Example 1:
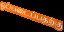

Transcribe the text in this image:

ஒப்படைப்பதற்கு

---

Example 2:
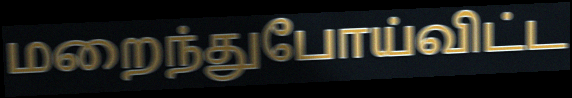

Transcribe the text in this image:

மறைந்துபோய்விட்ட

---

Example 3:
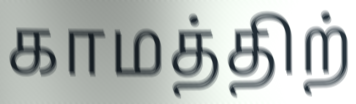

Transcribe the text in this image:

காமத்திற்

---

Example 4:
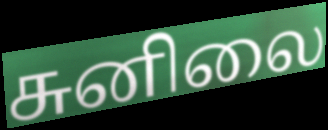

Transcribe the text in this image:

சுனிலை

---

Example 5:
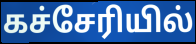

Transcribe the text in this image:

கச்சேரியில்